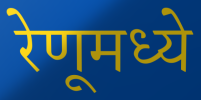
रेणूमध्ये